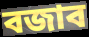
বজাব